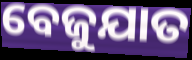
ବେଜୁଯାତ